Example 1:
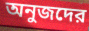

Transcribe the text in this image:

অনুজদের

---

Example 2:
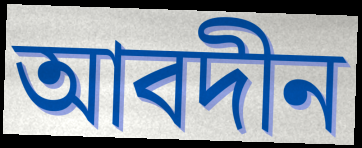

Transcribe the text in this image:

আবদীন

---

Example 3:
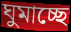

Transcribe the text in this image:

ঘুমাচ্ছে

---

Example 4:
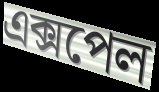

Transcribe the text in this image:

এক্সপেল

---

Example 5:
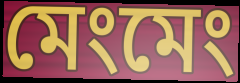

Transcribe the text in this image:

মেংমেং